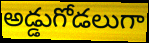
అడ్డుగోడలుగా